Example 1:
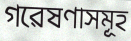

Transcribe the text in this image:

গৱেষণাসমূহ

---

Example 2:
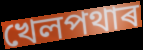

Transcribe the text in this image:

খেলপথাৰ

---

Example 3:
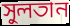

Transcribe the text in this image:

সুলতান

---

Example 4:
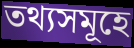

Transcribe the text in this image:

তথ্যসমূহে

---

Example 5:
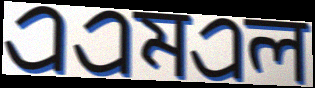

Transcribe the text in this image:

এএমএল